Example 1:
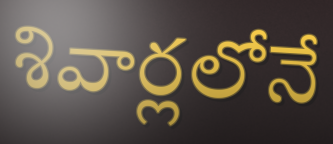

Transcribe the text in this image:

శివార్లలోనే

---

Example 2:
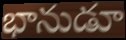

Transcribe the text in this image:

భానుడూ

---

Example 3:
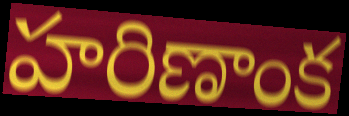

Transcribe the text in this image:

హరిణాంక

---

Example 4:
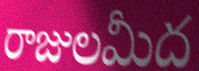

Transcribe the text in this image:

రాజులమీద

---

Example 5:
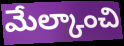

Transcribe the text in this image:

మేల్కాంచి